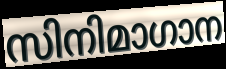
സിനിമാഗാന